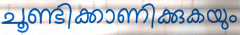
ചൂണ്ടിക്കാണിക്കുകയും